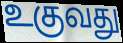
உகுவது